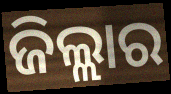
ଜିଲ୍ଲାର